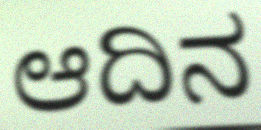
ಆದಿನ